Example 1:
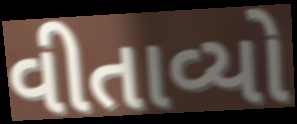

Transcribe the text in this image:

વીતાવ્યો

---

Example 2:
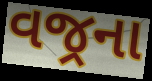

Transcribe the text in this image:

વજ્રના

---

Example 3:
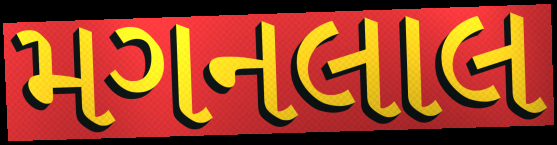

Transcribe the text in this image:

મગનલાલ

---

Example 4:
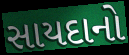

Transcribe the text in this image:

સાયદાનો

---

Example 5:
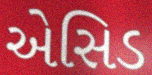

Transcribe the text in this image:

એસિડ